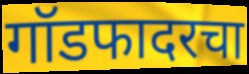
गॉडफादरचा